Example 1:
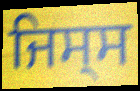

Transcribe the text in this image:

ਜਿਸ੍ਸ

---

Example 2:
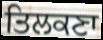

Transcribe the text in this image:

ਤਿਲਕਣਾ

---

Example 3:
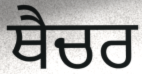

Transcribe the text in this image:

ਥੈਚਰ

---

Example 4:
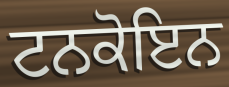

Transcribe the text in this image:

ਟਨਕੋਇਨ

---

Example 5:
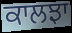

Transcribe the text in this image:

ਕਾਲਝਾ